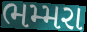
ભમ્મરા